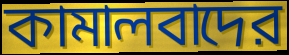
কামালবাদের